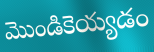
మొండికెయ్యడం